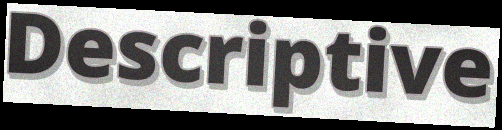
Descriptive